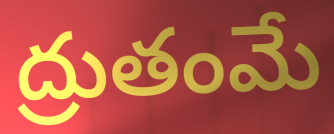
ద్రుతంమే